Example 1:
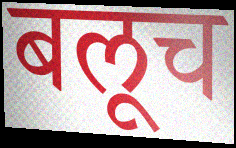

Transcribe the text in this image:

बलूच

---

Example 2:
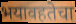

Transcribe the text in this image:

भयावहतेचा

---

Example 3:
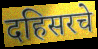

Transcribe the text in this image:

दहिसरचे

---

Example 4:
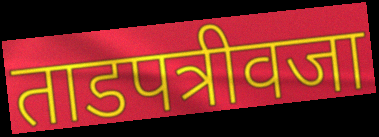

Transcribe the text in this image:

ताडपत्रीवजा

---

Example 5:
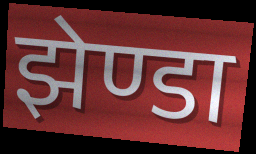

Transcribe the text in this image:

झेण्डा